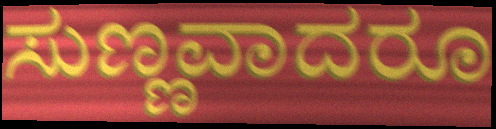
ಸುಣ್ಣವಾದರೂ